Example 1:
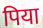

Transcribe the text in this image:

पिया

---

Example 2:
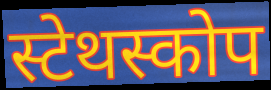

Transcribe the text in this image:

स्टेथस्कोप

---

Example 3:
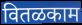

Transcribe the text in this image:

वितळकाम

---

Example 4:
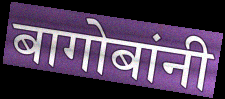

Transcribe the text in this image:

बागोबांनी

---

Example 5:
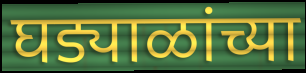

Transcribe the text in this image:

घड्याळांच्या